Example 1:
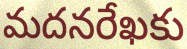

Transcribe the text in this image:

మదనరేఖకు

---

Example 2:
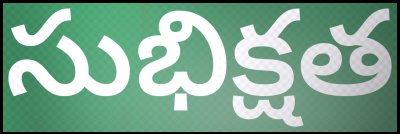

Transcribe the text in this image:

సుభిక్షత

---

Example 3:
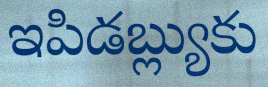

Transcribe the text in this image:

ఇపిడబ్ల్యుకు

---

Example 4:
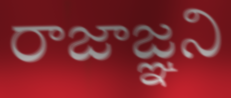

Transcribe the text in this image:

రాజాజ్ఞని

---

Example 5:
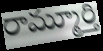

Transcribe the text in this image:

రామ్మూర్తి